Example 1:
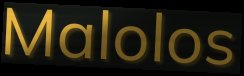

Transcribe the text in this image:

Malolos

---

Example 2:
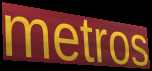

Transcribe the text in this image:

metros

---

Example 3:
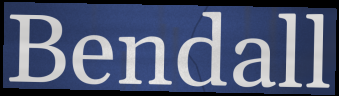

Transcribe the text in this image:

Bendall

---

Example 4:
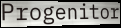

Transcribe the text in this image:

Progenitor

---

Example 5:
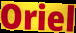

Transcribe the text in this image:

Oriel